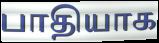
பாதியாக